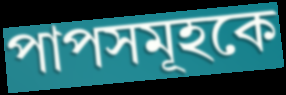
পাপসমূহকে